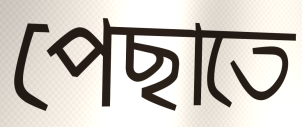
পেছাতে